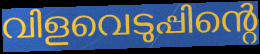
വിളവെടുപ്പിന്റെ